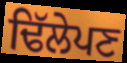
ਢਿੱਲੇਪਣ